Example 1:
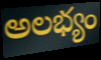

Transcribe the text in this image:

అలభ్యం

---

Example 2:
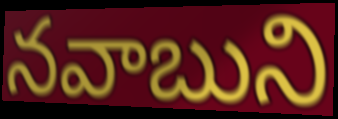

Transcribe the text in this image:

నవాబుని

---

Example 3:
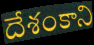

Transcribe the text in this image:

దేశంకాని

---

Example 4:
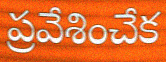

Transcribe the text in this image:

ప్రవేశించేక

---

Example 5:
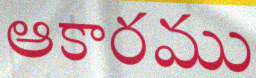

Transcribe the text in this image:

ఆకారము